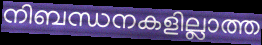
നിബന്ധനകളില്ലാത്ത